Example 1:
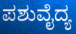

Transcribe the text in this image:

ಪಶುವೈದ್ಯ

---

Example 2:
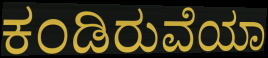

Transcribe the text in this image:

ಕಂಡಿರುವೆಯಾ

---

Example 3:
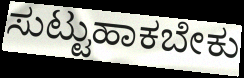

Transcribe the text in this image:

ಸುಟ್ಟುಹಾಕಬೇಕು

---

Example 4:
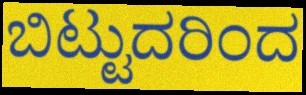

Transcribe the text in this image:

ಬಿಟ್ಟುದರಿಂದ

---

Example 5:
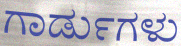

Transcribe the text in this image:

ಗಾರ್ಡುಗಳು